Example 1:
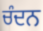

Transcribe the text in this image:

ਚੰਦਨ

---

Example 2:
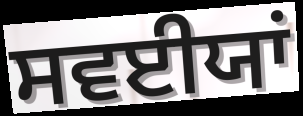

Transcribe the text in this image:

ਸਵਈਯਾਂ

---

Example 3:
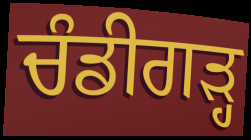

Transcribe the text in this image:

ਚੰਡੀਗਡ਼੍ਹ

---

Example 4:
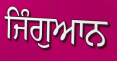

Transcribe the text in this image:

ਜਿੰਗੁਆਨ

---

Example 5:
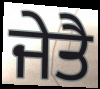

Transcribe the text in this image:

ਜੇਤੈ